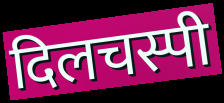
दिलचस्‍पी